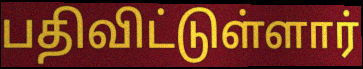
பதிவிட்டுள்ளார்